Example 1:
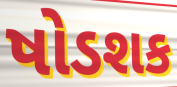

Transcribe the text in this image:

ષોડશક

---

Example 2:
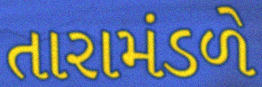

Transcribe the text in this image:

તારામંડળે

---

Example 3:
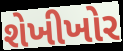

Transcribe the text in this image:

શેખીખોર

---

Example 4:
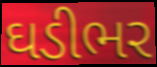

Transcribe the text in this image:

ઘડીભર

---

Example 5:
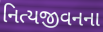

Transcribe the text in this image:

નિત્યજીવનના